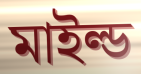
মাইল্ড